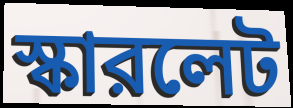
স্কারলেট